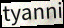
tyanni